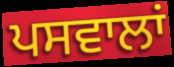
ਪਸਵਾਲਾਂ